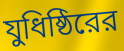
যুধিষ্ঠিরের